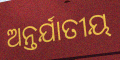
ଅନ୍ତର୍ଯାତୀୟ